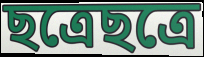
ছত্রেছত্রে